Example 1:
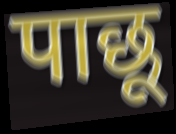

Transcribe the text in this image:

पाछू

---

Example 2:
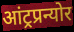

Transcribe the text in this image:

आंट्रप्रन्योर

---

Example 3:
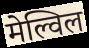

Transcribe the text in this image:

मेल्विल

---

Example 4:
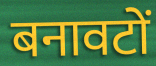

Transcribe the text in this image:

बनावटों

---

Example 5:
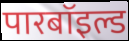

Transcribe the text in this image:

पारबॉइल्ड